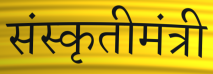
संस्कृतीमंत्री